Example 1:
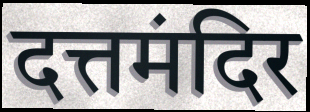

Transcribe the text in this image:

दत्तमंदिर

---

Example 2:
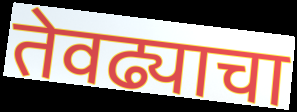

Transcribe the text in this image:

तेवढ्याचा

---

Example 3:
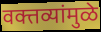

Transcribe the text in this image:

वक्तव्यांमुळे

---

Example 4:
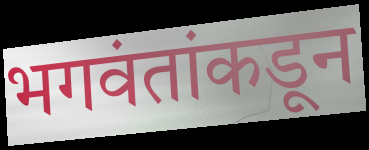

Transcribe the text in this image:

भगवंतांकडून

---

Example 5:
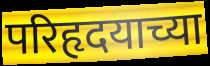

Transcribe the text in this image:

परिहृदयाच्या